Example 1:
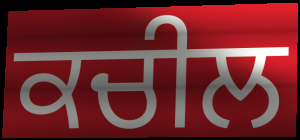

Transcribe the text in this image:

ਕਚੀਲ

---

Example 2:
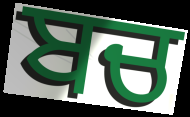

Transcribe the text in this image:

ਬਚ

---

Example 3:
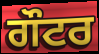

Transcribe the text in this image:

ਗੌਟਰ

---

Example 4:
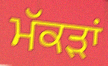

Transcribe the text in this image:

ਮੱਕੜਾਂ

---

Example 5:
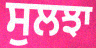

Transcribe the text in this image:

ਸੁਲਝਾ